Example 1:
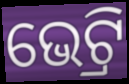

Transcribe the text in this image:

ଭେଟ୍ରି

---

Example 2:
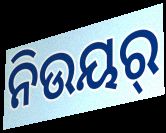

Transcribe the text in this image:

ନିଉୟର୍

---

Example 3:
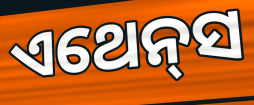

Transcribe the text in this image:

ଏଥେନ୍‌ସ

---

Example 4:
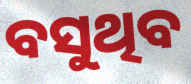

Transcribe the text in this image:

ବସୁଥିବ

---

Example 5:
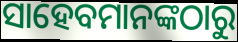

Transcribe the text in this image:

ସାହେବମାନଙ୍କଠାରୁ